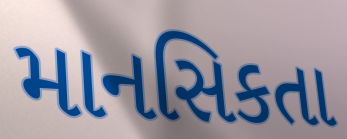
માનસિકતા